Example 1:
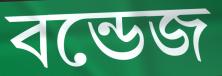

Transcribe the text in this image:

বন্ডেজ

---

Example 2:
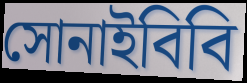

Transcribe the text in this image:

সোনাইবিবি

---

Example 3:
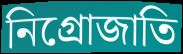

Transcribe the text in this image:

নিগ্রোজাতি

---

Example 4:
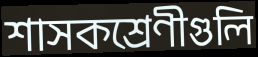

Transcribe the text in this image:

শাসকশ্রেণীগুলি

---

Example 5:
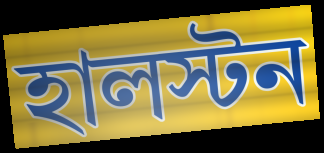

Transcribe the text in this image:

হালস্টন